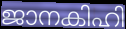
ജാനകിഹി